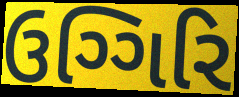
ઉગ્ગિરિ